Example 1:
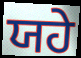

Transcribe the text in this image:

ਯਹੇ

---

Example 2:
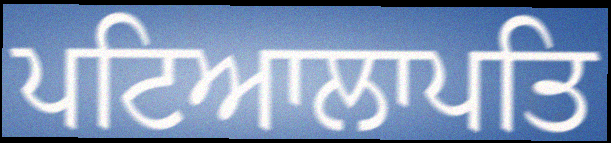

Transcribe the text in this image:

ਪਟਿਆਲਾਪਤਿ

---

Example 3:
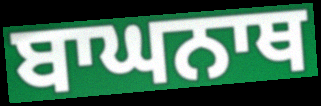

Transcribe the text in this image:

ਬਾਘਨਾਥ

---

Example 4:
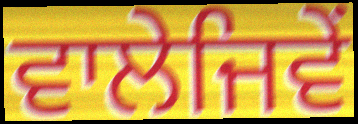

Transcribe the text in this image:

ਵਾਲੇਜਿਵੇਂ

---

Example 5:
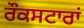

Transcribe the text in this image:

ਰੌਕਸਟਾਰਾਂ